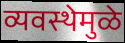
व्यवस्थेमुळे